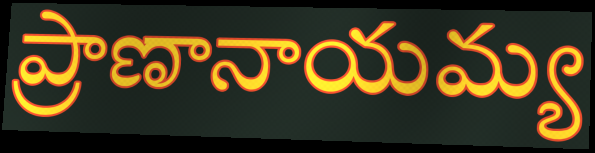
ప్రాణానాయమ్య